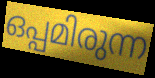
ഒപ്പമിരുന്ന